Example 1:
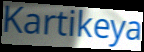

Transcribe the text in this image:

Kartikeya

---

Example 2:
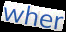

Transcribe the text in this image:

wher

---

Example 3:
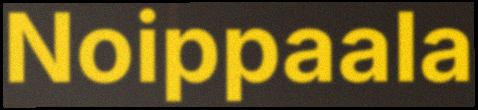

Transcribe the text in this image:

Noippaala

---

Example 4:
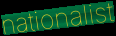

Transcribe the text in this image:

nationalist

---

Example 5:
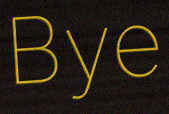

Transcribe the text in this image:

Bye